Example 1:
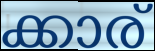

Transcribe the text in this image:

ക്കാര്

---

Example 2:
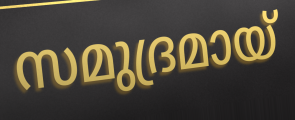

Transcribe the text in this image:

സമുദ്രമായ്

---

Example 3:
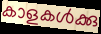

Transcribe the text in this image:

കാളകൾക്കു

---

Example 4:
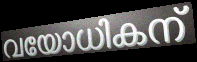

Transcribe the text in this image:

വയോധികന്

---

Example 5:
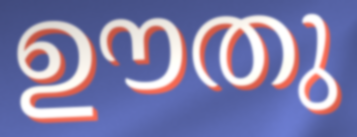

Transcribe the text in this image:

ഊതു